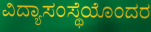
ವಿದ್ಯಾಸಂಸ್ಥೆಯೊಂದರ